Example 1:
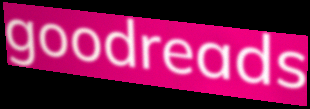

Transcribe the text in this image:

goodreads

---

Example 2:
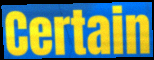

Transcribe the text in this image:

Certain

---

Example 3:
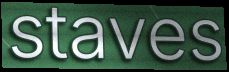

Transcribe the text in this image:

staves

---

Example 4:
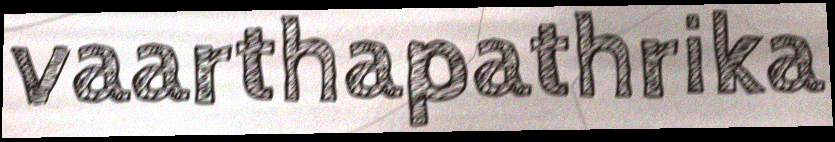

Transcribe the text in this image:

vaarthapathrika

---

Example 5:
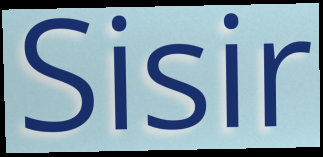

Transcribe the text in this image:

Sisir